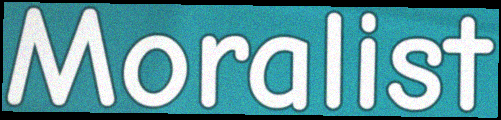
Moralist